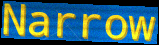
Narrow